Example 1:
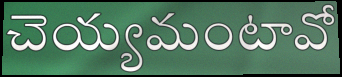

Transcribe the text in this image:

చెయ్యమంటావో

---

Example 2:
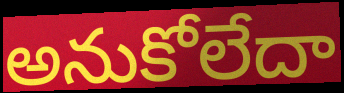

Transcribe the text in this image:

అనుకోలేదా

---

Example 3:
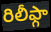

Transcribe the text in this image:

రిలీఫ్గా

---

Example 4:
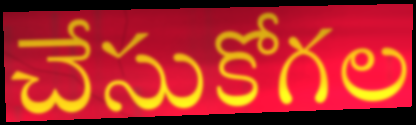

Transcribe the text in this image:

చేసుకోగల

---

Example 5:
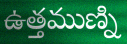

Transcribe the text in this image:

ఉత్తముణ్ని